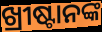
ଖ୍ରୀଷ୍ଟାନଙ୍କ